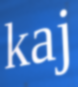
kaj